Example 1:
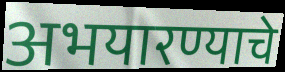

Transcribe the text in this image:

अभयारण्याचे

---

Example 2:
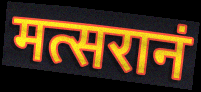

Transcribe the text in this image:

मत्सरानं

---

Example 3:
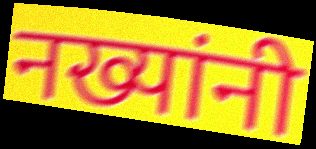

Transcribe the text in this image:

नख्यांनी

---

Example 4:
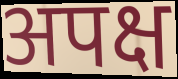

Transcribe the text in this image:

अपक्ष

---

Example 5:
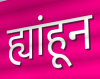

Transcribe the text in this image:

ह्यांहून